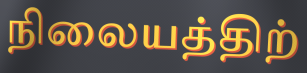
நிலையத்திற்